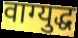
वाग्युद्ध